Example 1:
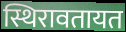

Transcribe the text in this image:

स्थिरावतायत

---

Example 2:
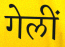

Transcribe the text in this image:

गेलीं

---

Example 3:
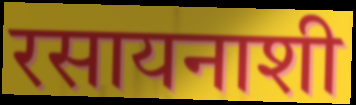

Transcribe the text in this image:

रसायनाशी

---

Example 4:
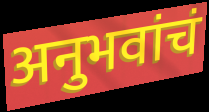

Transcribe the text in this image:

अनुभवांचं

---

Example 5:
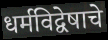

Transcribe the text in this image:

धर्मविद्वेषाचे